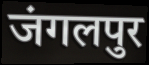
जंगलपुर